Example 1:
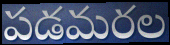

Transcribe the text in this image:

పడమరల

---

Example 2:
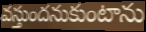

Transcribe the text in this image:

వస్తుందనుకుంటాను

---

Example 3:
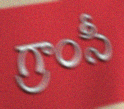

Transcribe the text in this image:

గ్రాంసీ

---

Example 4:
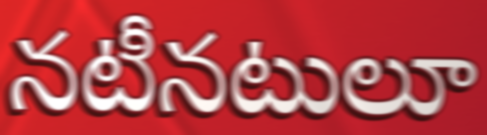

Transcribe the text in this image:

నటీనటులూ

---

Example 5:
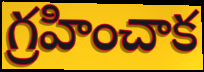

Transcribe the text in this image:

గ్రహించాక